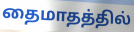
தைமாதத்தில்